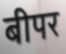
बीपर